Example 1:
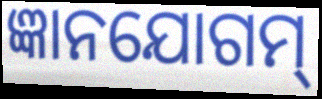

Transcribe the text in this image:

ଜ୍ଞାନଯୋଗମ୍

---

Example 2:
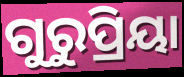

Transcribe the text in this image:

ଗୁରୁପ୍ରିୟା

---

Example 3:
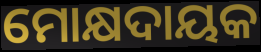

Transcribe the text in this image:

ମୋକ୍ଷଦାୟକ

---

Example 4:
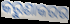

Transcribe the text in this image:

କରୁଣାକରର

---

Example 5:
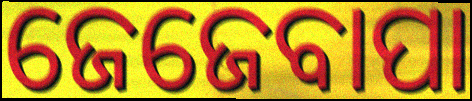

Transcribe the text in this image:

ଜେଜେବାପା